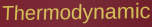
Thermodynamic